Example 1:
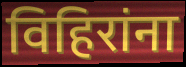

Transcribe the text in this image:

विहिरांना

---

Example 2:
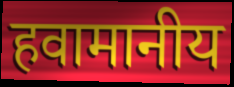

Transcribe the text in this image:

हवामानीय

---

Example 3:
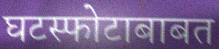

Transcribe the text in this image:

घटस्फोटाबाबत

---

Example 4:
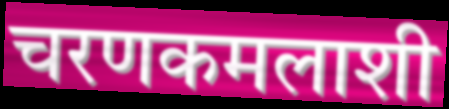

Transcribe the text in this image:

चरणकमलाशी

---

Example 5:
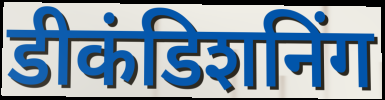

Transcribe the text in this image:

डीकंडिशनिंग